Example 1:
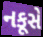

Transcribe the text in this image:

નકૂસે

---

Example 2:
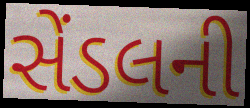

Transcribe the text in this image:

સેંડલની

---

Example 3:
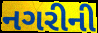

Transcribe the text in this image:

નગરીની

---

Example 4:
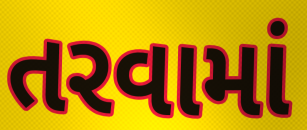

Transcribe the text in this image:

તરવામાં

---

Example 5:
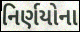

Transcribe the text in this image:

નિર્ણયોના